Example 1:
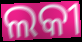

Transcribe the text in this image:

ଲକୀ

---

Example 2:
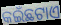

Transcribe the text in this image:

କଇଁଛଟାଏ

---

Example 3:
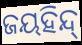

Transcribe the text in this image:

ଜୟହିନ୍ଦ୍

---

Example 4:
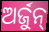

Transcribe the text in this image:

ଅର୍ଜୁନ୍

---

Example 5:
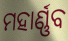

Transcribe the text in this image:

ମହାର୍ଣ୍ଣବ